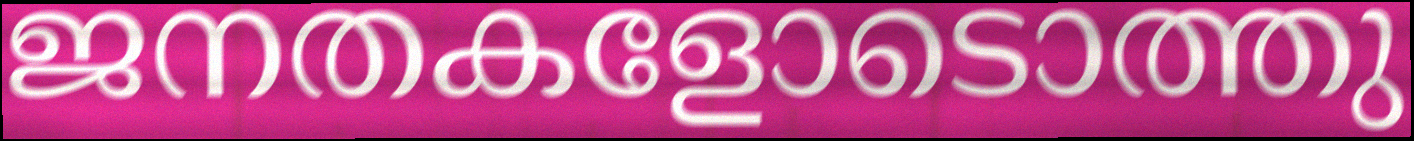
ജനതകളോടൊത്തു